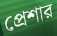
প্রেশার